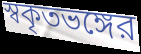
স্বকৃতভঙ্গের